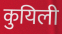
कुयिली